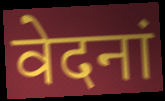
वेदनां